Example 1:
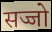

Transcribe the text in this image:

सज्जो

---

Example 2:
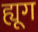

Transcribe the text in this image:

ह्यूग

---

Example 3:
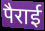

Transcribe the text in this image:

पैराई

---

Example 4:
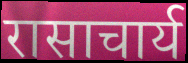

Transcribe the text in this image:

रासाचार्य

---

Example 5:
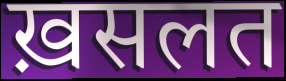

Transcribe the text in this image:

ख़सलत